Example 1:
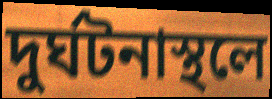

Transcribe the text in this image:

দুর্ঘটনাস্থলে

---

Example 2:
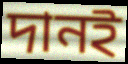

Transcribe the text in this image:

দানই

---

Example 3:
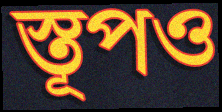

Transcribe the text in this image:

স্তূপও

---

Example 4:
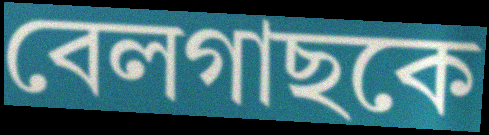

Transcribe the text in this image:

বেলগাছকে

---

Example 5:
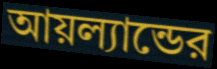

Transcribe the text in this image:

আয়ল্যান্ডের